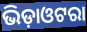
ଭିଡ଼ାଓଟରା